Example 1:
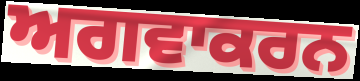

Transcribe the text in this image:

ਅਗਵਾਕਰਨ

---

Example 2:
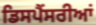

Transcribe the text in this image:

ਡਿਸਪੈਂਸਰੀਆਂ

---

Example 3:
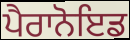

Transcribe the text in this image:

ਪੈਰਾਨੋਇਡ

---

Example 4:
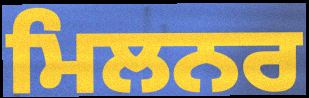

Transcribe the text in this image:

ਮਿਲਨਰ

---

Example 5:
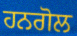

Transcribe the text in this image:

ਹਨਗੋਲ